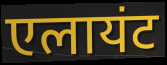
एलायंट